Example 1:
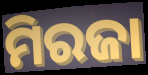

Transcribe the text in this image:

ମିରଜା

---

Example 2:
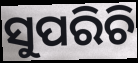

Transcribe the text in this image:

ସୁପରିଚି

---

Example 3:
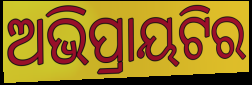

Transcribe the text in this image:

ଅଭିପ୍ରାୟଟିର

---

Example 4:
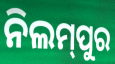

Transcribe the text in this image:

ନିଲମ୍‍ପୁର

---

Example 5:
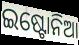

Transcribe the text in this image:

ଇଷ୍ଟୋନିଆ